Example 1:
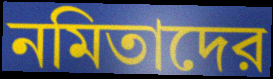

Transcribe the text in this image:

নমিতাদের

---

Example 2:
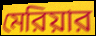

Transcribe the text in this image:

মেরিয়ার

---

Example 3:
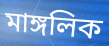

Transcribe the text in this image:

মাঙ্গলিক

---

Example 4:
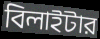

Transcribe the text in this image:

বিলাইটার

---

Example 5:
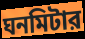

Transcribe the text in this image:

ঘনমিটার